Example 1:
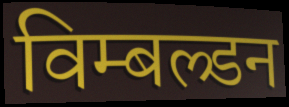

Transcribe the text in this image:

विम्बल्डन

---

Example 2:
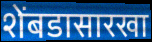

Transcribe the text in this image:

शेंबडासारखा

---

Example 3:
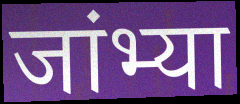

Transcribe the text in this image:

जांभ्या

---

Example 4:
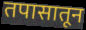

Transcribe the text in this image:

तपासातून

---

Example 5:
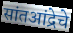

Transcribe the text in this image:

सांतआंद्रेचे